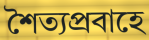
শৈত্যপ্রবাহে